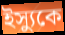
ইস্যুকে